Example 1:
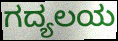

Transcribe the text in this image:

ಗದ್ಯಲಯ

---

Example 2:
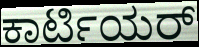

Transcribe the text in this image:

ಕಾರ್ಟಿಯರ್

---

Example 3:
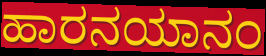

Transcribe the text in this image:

ಹಾರನಯಾನಂ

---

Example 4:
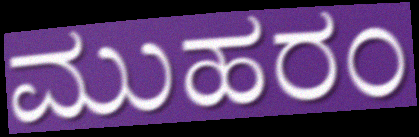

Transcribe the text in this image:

ಮುಹರಂ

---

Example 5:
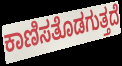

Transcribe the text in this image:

ಕಾಣಿಸತೊಡಗುತ್ತದೆ